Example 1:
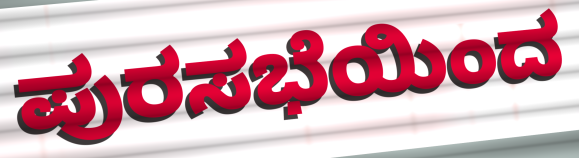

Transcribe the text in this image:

ಪುರಸಭೆಯಿಂದ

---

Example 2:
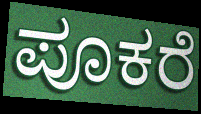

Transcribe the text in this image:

ಪೂಕರೆ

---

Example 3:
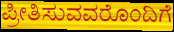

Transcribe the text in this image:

ಪ್ರೀತಿಸುವವರೊಂದಿಗೆ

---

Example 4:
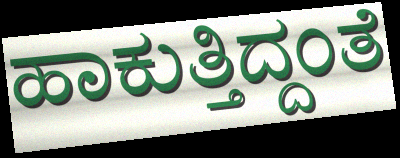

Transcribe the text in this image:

ಹಾಕುತ್ತಿದ್ದಂತೆ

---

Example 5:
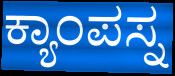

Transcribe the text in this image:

ಕ್ಯಾಂಪಸ್ನ